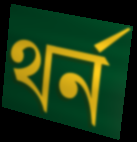
থর্ন